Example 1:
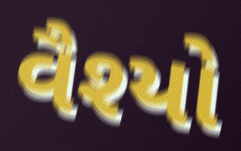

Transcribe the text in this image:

વૈશ્યો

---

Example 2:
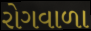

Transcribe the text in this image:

રોગવાળા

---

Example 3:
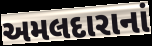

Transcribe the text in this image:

અમલદારાનાં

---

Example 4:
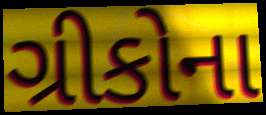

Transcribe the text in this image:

ગ્રીકોના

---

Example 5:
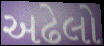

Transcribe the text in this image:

અઢેલો